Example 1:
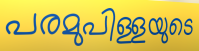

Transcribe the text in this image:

പരമുപിള്ളയുടെ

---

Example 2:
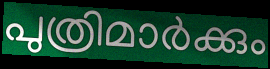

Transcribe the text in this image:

പുത്രിമാർക്കും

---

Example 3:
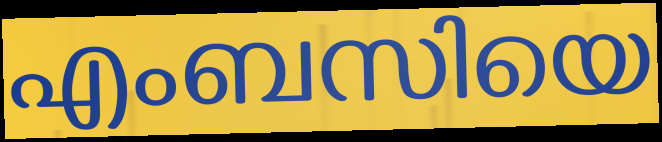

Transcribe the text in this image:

എംബസിയെ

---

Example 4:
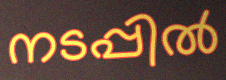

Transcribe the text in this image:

നടപ്പിൽ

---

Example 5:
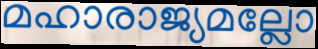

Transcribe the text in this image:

മഹാരാജ്യമല്ലോ